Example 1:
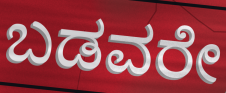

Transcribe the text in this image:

ಬಡವರೇ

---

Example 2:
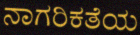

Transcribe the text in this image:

ನಾಗರಿಕತೆಯ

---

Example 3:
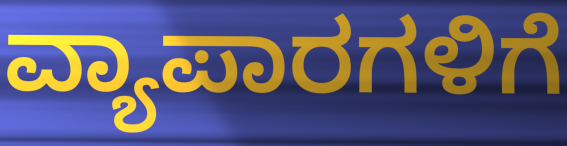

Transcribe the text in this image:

ವ್ಯಾಪಾರಗಳಿಗೆ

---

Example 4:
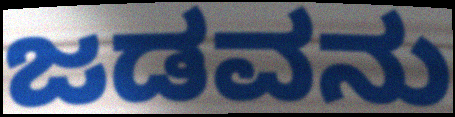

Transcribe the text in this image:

ಜಡವನು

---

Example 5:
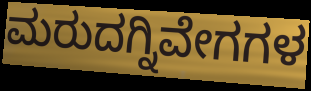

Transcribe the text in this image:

ಮರುದಗ್ನಿವೇಗಗಳ